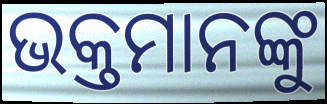
ଭକ୍ତମାନଙ୍କୁ